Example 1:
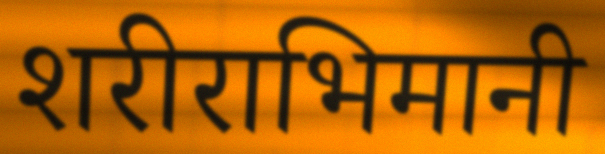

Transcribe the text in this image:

शरीराभिमानी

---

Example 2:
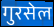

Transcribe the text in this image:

गुरसेल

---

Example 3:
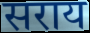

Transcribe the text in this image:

सराय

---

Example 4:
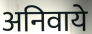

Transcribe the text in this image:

अनिवाये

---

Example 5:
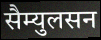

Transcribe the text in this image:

सैम्युलसन